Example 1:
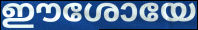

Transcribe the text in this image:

ഈശോയേ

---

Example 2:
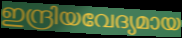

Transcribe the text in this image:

ഇന്ദ്രിയവേദ്യമായ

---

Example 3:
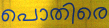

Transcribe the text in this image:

പൊതിരെ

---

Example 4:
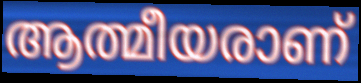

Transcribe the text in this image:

ആത്മീയരാണ്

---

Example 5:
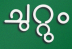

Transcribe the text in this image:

ചുറ്റും